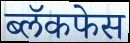
ब्लॅकफेस